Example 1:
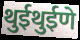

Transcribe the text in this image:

थुईथुईणे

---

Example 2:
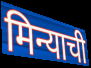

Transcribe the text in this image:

मिन्याची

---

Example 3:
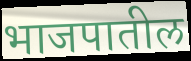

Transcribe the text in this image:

भाजपातील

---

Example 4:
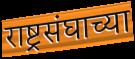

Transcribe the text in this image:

राष्ट्रसंघाच्या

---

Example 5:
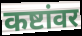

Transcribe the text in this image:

कष्टांवर